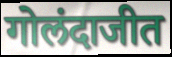
गोलंदाजीत